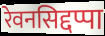
रेवनसिद्दप्पा